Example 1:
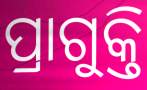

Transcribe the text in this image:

ପ୍ରାଗୁକ୍ତି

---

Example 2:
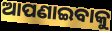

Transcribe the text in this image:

ଆପଣାଇବାକୁ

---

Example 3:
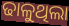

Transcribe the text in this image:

ଢାଳୁଥିଲା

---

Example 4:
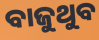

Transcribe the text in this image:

ବାଜୁଥୁବ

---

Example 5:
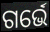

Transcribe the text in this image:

ଗର୍ଭେ